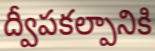
ద్వీపకల్పానికి